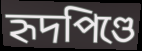
হৃদপিণ্ডে